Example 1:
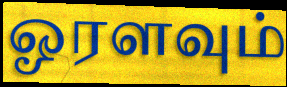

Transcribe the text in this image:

ஓரளவும்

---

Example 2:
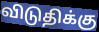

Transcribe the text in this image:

விடுதிக்கு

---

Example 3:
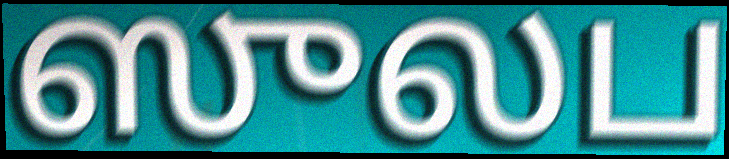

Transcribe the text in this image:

ஸுலப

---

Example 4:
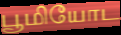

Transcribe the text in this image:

பூமியோட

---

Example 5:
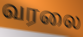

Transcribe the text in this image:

வரலை